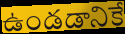
ఉండడానికే